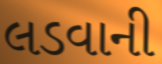
લડવાની